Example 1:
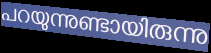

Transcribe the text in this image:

പറയുന്നുണ്ടായിരുന്നു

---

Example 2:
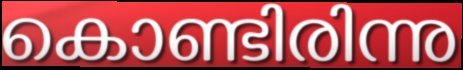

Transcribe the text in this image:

കൊണ്ടിരിന്നു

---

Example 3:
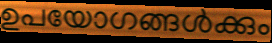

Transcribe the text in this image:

ഉപയോഗങ്ങൾക്കും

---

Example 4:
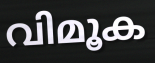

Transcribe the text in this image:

വിമൂക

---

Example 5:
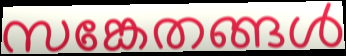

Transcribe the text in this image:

സങ്കേതങ്ങൾ